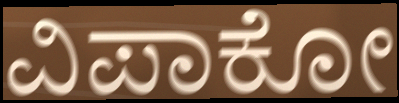
ವಿಪಾಕೋ